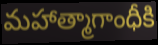
మహాత్మాగాంధీకి